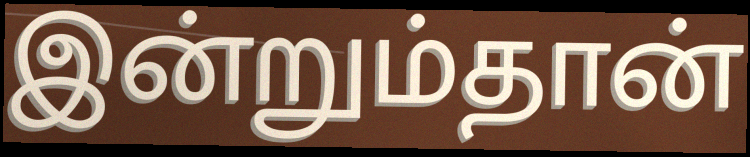
இன்றும்தான்